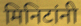
मिनिटांनी